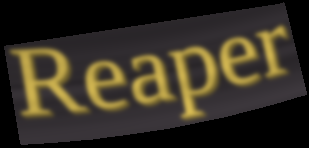
Reaper